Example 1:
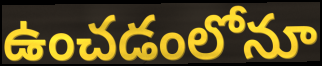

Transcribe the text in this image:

ఉంచడంలోనూ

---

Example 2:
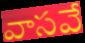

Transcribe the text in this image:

వాసవే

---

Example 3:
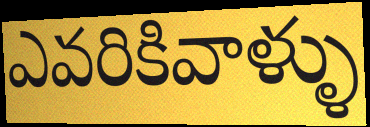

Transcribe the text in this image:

ఎవరికివాళ్ళు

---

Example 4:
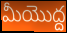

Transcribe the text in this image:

మీయొద్ద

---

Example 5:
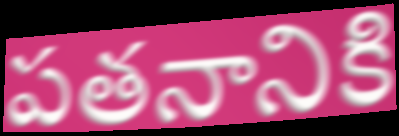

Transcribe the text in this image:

పతనానికి